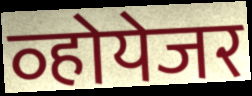
व्होयेजर